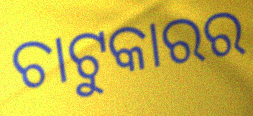
ଚାଟୁକାରର